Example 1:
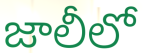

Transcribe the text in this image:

జాలీలో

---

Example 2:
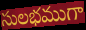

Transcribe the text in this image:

సులభముగా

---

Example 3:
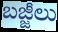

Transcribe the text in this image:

బజ్జీలు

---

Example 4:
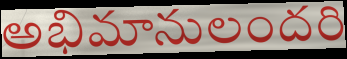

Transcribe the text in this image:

అభిమానులందరి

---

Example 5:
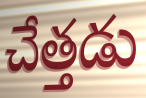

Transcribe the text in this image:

చేత్తడు